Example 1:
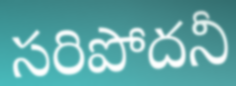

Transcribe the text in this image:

సరిపోదనీ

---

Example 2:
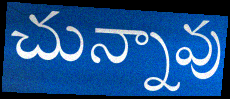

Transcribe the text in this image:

చున్నావు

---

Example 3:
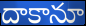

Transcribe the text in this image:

దాకానూ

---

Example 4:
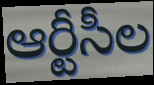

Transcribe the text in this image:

ఆర్టీసీల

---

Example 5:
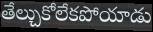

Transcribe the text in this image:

తేల్చుకోలేకపోయాడు